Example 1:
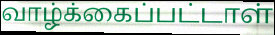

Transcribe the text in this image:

வாழ்க்கைப்பட்டாள்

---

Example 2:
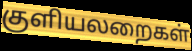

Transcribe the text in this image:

குளியலறைகள்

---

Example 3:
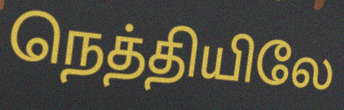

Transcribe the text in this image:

நெத்தியிலே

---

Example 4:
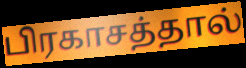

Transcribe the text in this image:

பிரகாசத்தால்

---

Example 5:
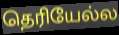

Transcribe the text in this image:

தெரியேல்ல